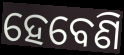
ହେବେଣି